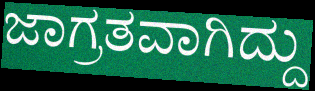
ಜಾಗ್ರತವಾಗಿದ್ದು